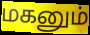
மகனும்